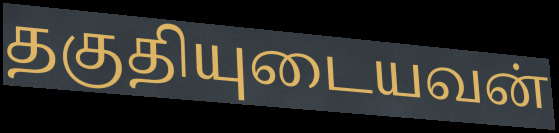
தகுதியுடையவன்